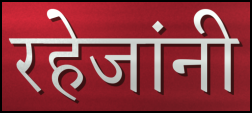
रहेजांनी